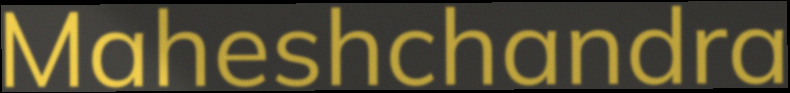
Maheshchandra